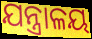
ଯନ୍ତ୍ରାଳୟ